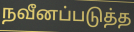
நவீனப்படுத்த